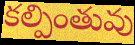
కల్పింతువు